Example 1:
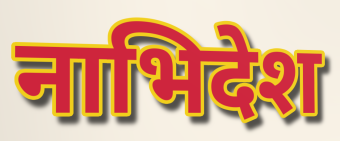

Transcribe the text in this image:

नाभिदेश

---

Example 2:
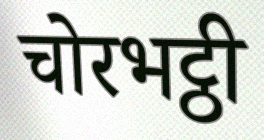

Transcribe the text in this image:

चोरभट्ठी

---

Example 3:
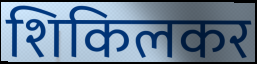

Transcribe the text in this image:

शिकिलकर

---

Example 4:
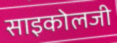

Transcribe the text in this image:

साइकोलजी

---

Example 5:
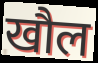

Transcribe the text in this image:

खौल